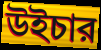
উইচার